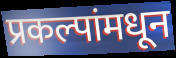
प्रकल्पांमधून